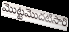
మొట్టమొదటిసారి